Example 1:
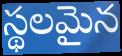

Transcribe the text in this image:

స్థలమైన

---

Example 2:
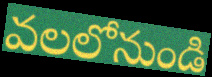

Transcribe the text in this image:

వలలోనుండి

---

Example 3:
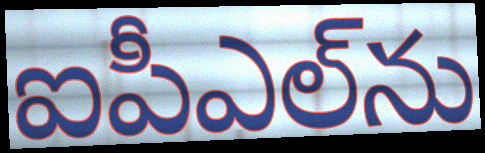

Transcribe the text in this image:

ఐపీఎల్‌ను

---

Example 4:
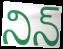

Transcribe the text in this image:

నిన్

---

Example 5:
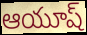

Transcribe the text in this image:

ఆయూష్